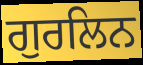
ਗੁਰਲਿਨ